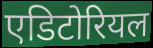
एडिटोरियल